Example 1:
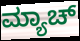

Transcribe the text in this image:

ಮ್ಯಾಚ್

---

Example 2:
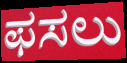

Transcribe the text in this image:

ಫಸಲು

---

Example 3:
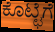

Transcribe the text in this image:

ಕೊಟ್ಟೆಗೆ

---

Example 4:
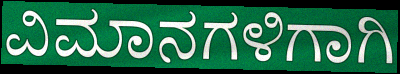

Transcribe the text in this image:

ವಿಮಾನಗಳಿಗಾಗಿ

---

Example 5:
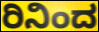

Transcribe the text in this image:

ರಿನಿಂದ